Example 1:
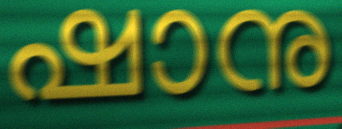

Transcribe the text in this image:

ഷാനു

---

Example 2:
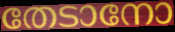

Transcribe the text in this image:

തേടാനോ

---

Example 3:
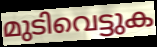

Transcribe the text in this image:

മുടിവെട്ടുക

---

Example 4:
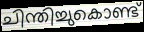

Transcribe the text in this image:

ചിന്തിച്ചുകൊണ്ട്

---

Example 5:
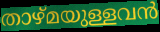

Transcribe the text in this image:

താഴ്മയുള്ളവൻ